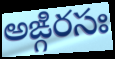
అఙ్గిరసః